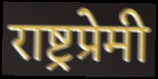
राष्ट्रप्रेमी